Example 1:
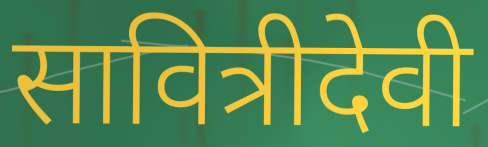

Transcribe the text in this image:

सावित्रीदेवी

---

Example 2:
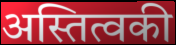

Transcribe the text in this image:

अस्तित्वकी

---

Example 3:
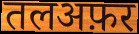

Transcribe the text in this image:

तलअफ़र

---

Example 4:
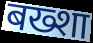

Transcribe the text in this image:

बख्शा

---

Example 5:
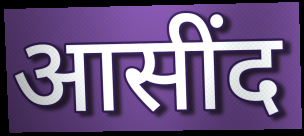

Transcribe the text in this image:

आसींद